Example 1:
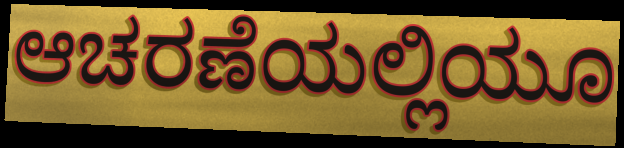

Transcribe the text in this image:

ಆಚರಣೆಯಲ್ಲಿಯೂ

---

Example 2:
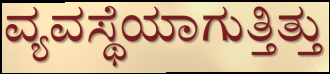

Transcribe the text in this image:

ವ್ಯವಸ್ಥೆಯಾಗುತ್ತಿತ್ತು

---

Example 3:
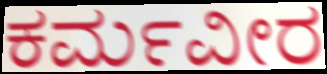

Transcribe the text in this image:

ಕರ್ಮವೀರ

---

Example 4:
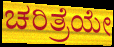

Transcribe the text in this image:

ಚರಿತ್ರೆಯೇ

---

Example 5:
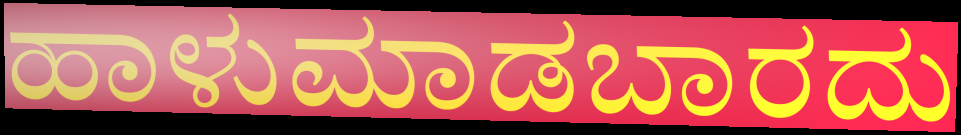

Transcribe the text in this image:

ಹಾಳುಮಾಡಬಾರದು